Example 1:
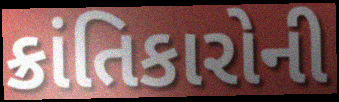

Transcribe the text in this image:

ક્રાંતિકારોની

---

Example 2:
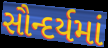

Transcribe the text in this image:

સૌન્દર્યમાં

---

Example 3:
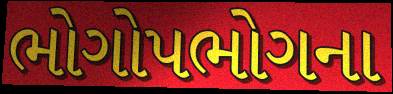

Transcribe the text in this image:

ભોગોપભોગના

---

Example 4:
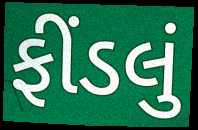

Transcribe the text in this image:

ફીંડલું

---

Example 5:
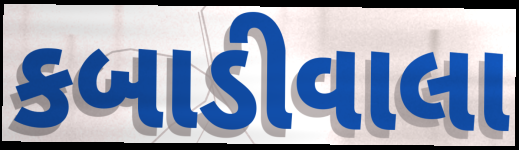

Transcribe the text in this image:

કબાડીવાલા